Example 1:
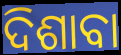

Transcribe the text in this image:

ଦିଶାବା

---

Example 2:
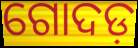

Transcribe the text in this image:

ଗୋଦଡ଼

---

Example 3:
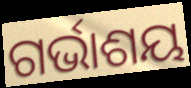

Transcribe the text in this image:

ଗର୍ଭାଶୟ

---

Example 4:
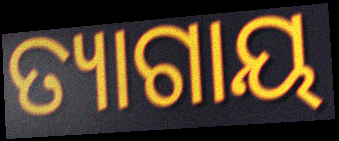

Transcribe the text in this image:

ତ୍ୟାଗାୟ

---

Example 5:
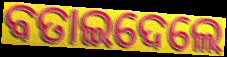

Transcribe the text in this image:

ବତାଇଦେଲେ